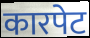
कारपेट